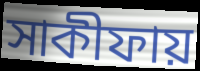
সাকীফায়